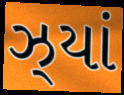
ઝ્યાં